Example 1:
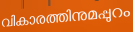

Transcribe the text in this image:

വികാരത്തിനുമപ്പുറം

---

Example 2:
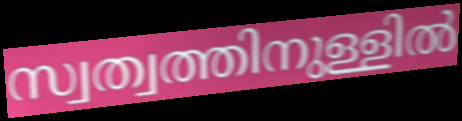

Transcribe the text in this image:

സ്വത്വത്തിനുള്ളിൽ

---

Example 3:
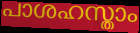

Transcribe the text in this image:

പാശഹസ്താം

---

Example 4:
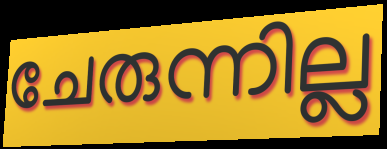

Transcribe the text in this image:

ചേരുന്നില്ല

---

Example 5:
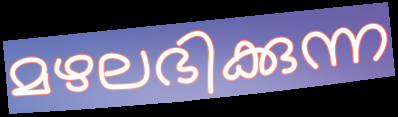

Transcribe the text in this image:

മഴലഭിക്കുന്ന